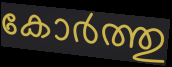
കോർത്തു